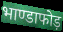
भाण्डाफोड़